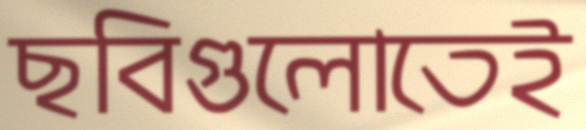
ছবিগুলোতেই